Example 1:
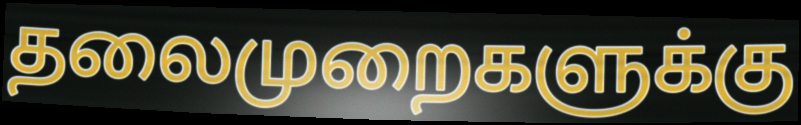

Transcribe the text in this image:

தலைமுறைகளுக்கு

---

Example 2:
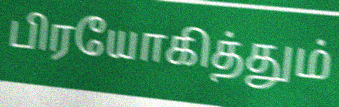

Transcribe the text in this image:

பிரயோகித்தும்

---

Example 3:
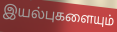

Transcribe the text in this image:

இயல்புகளையும்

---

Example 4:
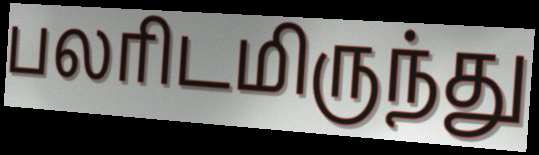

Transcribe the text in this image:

பலரிடமிருந்து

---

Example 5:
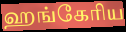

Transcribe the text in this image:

ஹங்கேரிய